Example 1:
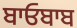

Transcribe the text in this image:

ਬਾਓਬਾਬ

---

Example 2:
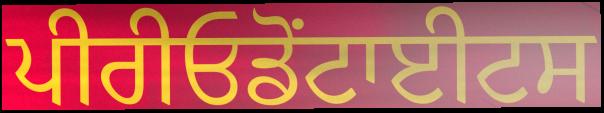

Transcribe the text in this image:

ਪੀਰੀਓਡੋਂਟਾਈਟਸ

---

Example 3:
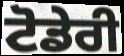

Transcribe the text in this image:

ਟੋਡੇਰੀ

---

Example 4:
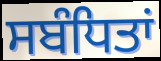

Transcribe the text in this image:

ਸਬੰਧਿਤਾਂ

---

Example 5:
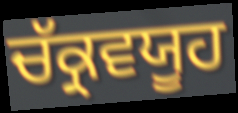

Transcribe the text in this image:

ਚੱਕ੍ਰਵਯੂਹ